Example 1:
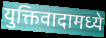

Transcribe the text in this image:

युक्तिवादामध्ये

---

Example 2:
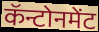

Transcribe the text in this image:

कॅन्टोनमेंट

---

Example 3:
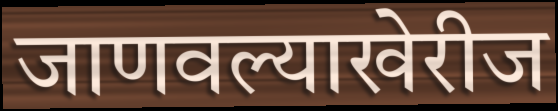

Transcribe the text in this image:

जाणवल्याखेरीज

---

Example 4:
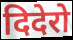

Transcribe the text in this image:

दिदेरो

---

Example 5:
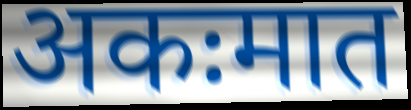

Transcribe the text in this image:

अकःमात